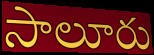
సాలూరు